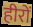
हीरों